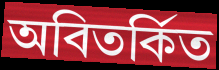
অবিতর্কিত